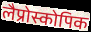
लैप्रोस्कोपिक